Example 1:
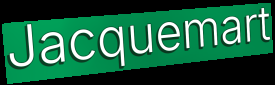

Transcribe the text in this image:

Jacquemart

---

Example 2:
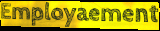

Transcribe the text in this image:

Employaement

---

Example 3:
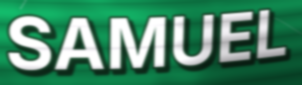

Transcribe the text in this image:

SAMUEL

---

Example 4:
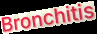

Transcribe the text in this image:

Bronchitis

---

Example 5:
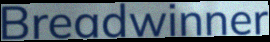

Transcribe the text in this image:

Breadwinner